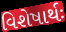
વિશેષાર્થઃ